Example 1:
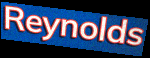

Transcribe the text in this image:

Reynolds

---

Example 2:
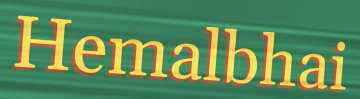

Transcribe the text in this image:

Hemalbhai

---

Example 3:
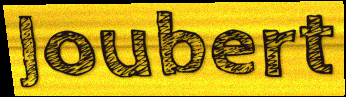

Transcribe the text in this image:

Joubert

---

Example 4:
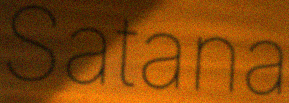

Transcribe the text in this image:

Satana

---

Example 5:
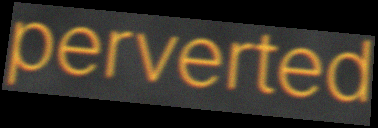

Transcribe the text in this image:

perverted